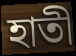
হাতী